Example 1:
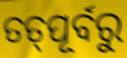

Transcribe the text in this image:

ତତ୍‌ପୂର୍ବରୁ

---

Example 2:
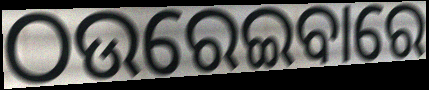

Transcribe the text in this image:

ଠଉରେଇବାରେ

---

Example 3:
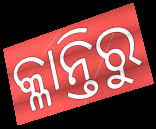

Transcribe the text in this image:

କ୍ଳାନ୍ତିରୁ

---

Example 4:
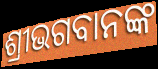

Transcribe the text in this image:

ଶ୍ରୀଭଗବାନଙ୍କ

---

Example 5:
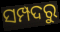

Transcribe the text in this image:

ସମ୍ପଦରୁ